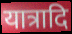
यात्रादि